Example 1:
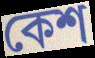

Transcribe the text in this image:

কেশ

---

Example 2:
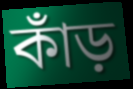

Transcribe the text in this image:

কাঁড়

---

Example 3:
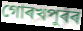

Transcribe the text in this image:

গোৰখপুৰৰ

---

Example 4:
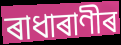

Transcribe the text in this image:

ৰাধাৰাণীৰ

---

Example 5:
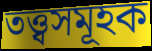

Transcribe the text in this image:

তত্ত্বসমূহক